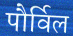
पौर्विल